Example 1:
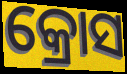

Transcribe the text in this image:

କ୍ରୋସ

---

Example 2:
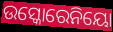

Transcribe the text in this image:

ଉସ୍କୋରେନିୟୋ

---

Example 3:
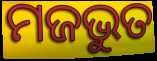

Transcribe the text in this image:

ମଜଭୁତ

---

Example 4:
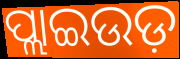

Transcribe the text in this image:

ପ୍ଲାଇଉଡ଼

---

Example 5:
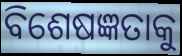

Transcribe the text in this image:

ବିଶେଷଜ୍ଞତାକୁ